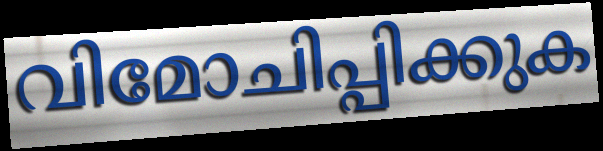
വിമോചിപ്പിക്കുക